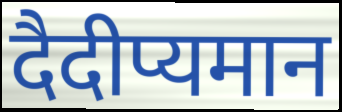
दैदीप्यमान